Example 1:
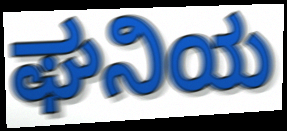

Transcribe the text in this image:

ಘನಿಯ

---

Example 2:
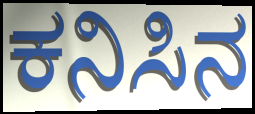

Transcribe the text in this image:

ಕನಿಸಿನ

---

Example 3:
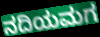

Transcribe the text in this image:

ನದಿಯಮಗ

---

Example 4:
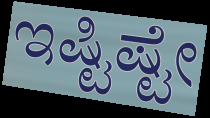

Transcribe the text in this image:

ಇಷ್ಟಿಷ್ಟೇ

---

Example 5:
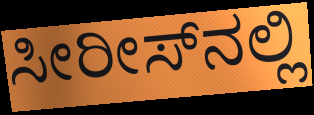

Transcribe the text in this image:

ಸೀರೀಸ್‌ನಲ್ಲಿ